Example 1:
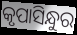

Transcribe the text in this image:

କୃପାସିନ୍ଧୁର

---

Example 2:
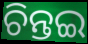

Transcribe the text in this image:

ଚିନ୍ତଇ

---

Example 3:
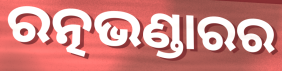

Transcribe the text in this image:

ରତ୍ନଭଣ୍ଡାରର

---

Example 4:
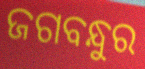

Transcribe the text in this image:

ଜଗବନ୍ଧୁର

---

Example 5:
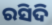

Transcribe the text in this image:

ରସିଦି